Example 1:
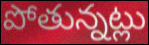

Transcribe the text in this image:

పోతున్నట్లు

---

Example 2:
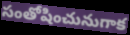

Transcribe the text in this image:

సంతోషించునుగాక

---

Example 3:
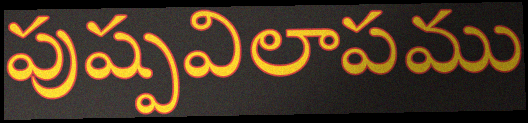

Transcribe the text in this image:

పుష్పవిలాపము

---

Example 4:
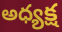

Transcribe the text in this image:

అధ్యక్ష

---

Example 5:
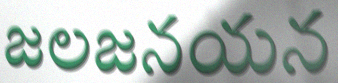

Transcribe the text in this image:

జలజనయన